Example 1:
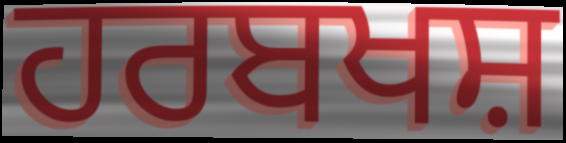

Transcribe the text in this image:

ਹਰਬਖਸ਼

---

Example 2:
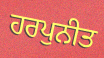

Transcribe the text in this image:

ਹਰਪੁਨੀਤ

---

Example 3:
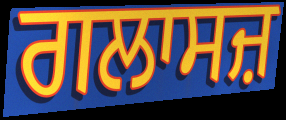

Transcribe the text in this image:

ਗਲਾਸਜ਼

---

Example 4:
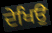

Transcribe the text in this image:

ਦੇਖਿਉ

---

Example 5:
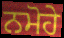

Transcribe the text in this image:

ਨਮੋਹੇ